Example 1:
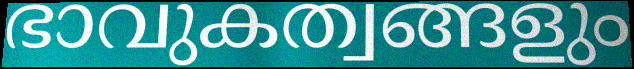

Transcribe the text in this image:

ഭാവുകത്വങ്ങളും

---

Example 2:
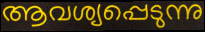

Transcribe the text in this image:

ആവശ്യപ്പെടുന്നു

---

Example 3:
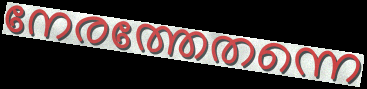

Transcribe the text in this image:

നേരത്തേതന്നെ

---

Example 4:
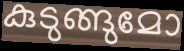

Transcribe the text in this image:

കുടുങ്ങുമോ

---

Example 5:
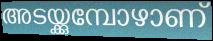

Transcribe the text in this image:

അടയ്ക്കുമ്പോഴാണ്